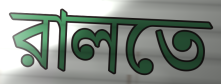
রালতে